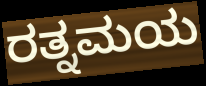
ರತ್ನಮಯ